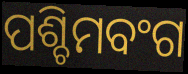
ପଶ୍ଚିମବଂଗ